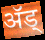
ॲड्